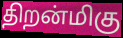
திறன்மிகு